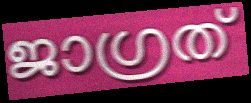
ജാഗ്രത്